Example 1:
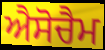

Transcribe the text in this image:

ਐਸੋਚੈਮ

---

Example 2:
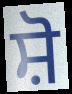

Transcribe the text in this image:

ਸ਼ੋ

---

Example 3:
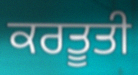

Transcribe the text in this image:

ਕਰਤੂਤੀ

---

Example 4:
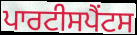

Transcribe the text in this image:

ਪਾਰਟੀਸਪੈਂਟਸ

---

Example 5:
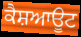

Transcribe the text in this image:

ਕੈਸ਼ਆਊਟ